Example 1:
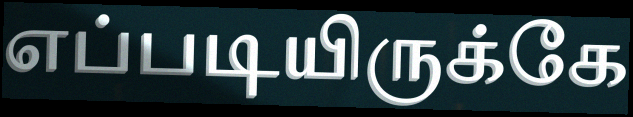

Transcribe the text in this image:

எப்படியிருக்கே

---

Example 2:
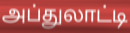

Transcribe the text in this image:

அப்துலாட்டி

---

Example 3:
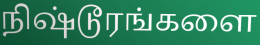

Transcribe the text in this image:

நிஷ்டூரங்களை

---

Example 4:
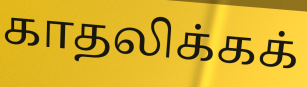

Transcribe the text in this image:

காதலிக்கக்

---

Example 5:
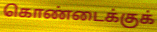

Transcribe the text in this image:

கொண்டைக்குக்